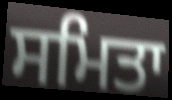
ਸਮਿਤਾ